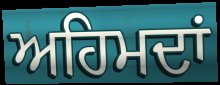
ਅਹਿਮਦਾਂ